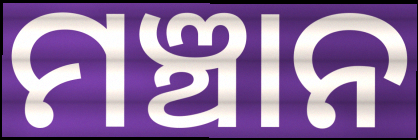
ମଞ୍ଚାନ